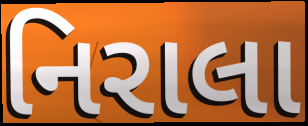
નિરાલા